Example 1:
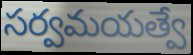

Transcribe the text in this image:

సర్వమయత్వే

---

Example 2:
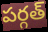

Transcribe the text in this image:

పర్గత్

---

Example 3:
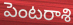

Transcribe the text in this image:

పెంటరాశి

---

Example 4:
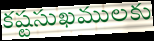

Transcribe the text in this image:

కష్టసుఖములకు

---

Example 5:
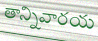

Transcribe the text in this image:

తాన్నివారయ